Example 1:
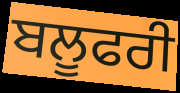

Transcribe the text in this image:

ਬਲੂਫਰੀ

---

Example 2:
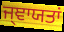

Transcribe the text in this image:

ਜ੍ਞਾਯਤਾਂ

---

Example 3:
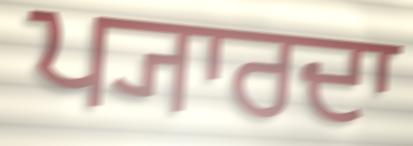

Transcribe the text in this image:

ਪ੍ਯਾਰਦਾ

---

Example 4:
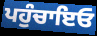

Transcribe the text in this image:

ਪਹੁੰਚਾਇਓ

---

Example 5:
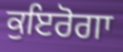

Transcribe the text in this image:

ਕੁਇਰੋਗਾ